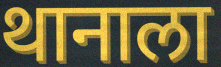
थानाला